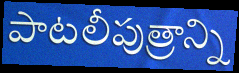
పాటలీపుత్రాన్ని